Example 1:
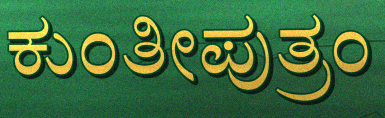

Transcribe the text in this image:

ಕುಂತೀಪುತ್ರಂ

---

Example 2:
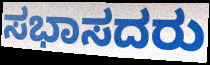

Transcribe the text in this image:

ಸಭಾಸದರು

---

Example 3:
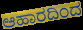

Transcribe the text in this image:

ಆಹಾರದಿಂದ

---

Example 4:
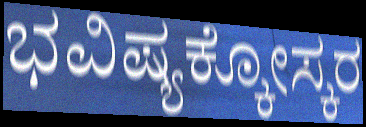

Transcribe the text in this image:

ಭವಿಷ್ಯಕ್ಕೋಸ್ಕರ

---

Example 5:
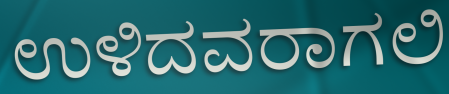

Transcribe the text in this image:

ಉಳಿದವರಾಗಲಿ